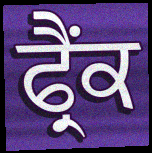
ਫ੍ਰੈਂਕ